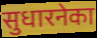
सुधारनेका